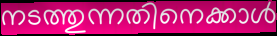
നടത്തുന്നതിനെക്കാൾ